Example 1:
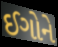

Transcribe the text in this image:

ઈગોને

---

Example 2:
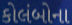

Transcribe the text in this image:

કોલંબોના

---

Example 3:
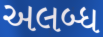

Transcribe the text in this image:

અલબ્ધ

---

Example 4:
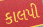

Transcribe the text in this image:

કાલપી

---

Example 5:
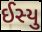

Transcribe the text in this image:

ઈસ્યુ